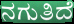
ನಗುತಿದೆ